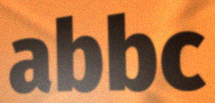
abbc